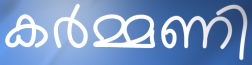
കർമ്മണി